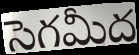
సెగమీద